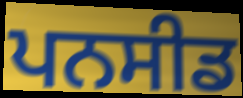
ਪਨਸੀਡ